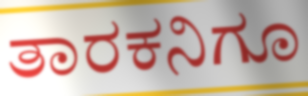
ತಾರಕನಿಗೂ